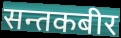
सन्तकबीर